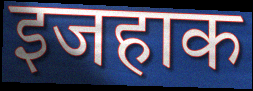
इजहाक